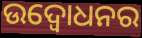
ଉଦ୍ବୋଧନର